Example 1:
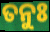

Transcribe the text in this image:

ତନୁଃ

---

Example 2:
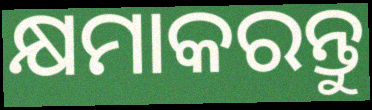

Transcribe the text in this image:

କ୍ଷମାକରନ୍ତୁ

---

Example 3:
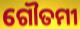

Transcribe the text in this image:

ଗୌତମୀ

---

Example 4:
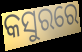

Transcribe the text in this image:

କସୁରରେ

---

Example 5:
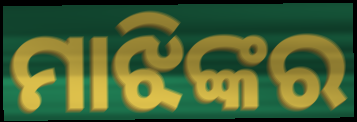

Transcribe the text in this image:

ମାଝିଙ୍କର